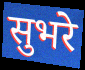
सुभरे